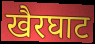
खैरघाट